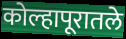
कोल्हापूरातले